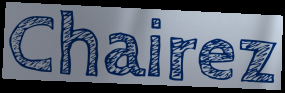
Chairez